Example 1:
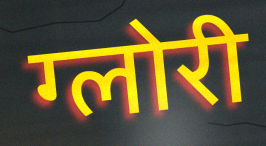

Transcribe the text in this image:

ग्लोरी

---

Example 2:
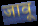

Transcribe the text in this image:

जावू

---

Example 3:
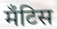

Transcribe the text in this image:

मँटिस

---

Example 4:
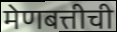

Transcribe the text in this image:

मेणबत्तीची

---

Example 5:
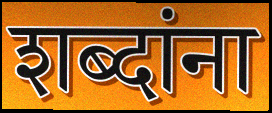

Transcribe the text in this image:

शब्दांना